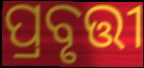
ପ୍ରବୃତ୍ତୀ